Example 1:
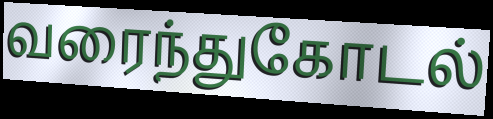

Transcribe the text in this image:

வரைந்துகோடல்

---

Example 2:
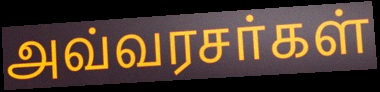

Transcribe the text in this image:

அவ்வரசர்கள்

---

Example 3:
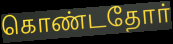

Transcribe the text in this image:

கொண்டதோர்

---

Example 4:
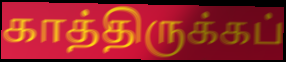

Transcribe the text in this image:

காத்திருக்கப்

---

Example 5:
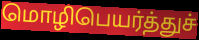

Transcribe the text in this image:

மொழிபெயர்த்துச்